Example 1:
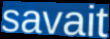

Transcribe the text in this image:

savait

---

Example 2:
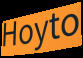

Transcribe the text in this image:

Hoyto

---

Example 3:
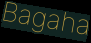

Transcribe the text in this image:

Bagaha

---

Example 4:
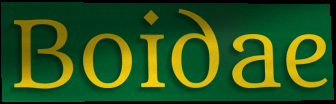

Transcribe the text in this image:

Boidae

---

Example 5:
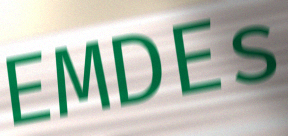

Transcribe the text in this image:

EMDEs